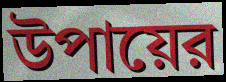
উপায়ের